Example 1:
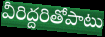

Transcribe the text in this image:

వీరిద్దరితోపాటు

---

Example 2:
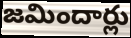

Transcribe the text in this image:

జమిందార్లు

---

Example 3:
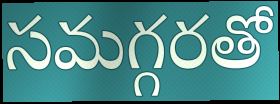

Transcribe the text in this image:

సమగ్గరతో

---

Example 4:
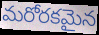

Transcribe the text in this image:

మరోరకమైన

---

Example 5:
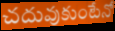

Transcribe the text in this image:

చదువుకుంటేనో